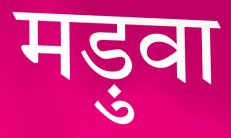
मड़ुवा